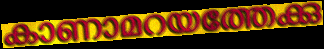
കാണാമറയത്തേക്കു